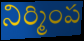
నిర్మింప